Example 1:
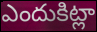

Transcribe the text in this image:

ఎందుకిట్లా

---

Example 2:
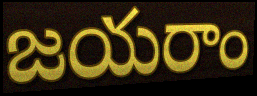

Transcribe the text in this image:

జయరాం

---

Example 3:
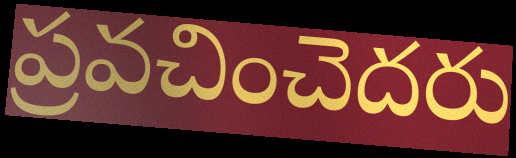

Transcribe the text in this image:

ప్రవచించెదరు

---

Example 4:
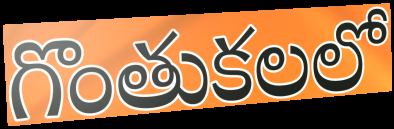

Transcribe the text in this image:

గొంతుకలలో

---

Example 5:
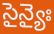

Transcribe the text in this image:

సైన్యైః